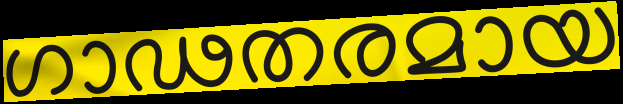
ഗാഢതരമായ